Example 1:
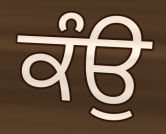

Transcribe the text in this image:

ਕੰਉ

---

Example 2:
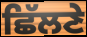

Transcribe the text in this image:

ਛਿੱਲਣੇ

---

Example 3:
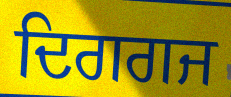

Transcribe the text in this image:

ਦਿਗਗਜ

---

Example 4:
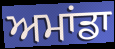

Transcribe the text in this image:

ਅਮਾਂਡਾ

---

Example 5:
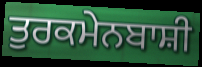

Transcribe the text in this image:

ਤੁਰਕਮੇਨਬਾਸ਼ੀ